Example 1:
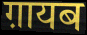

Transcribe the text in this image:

ग़ायब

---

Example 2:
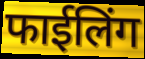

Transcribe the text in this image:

फाईलिंग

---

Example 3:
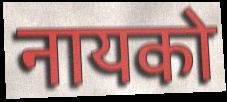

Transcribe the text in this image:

नायको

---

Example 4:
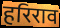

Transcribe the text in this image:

हरिराव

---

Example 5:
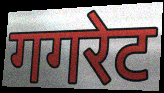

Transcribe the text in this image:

गगरेट